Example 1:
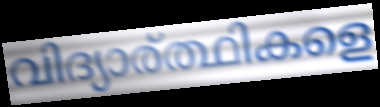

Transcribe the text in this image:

വിദ്യാര്ത്ഥികളെ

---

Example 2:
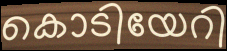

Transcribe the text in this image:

കൊടിയേറി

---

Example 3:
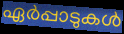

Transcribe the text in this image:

ഏർപ്പാടുകൾ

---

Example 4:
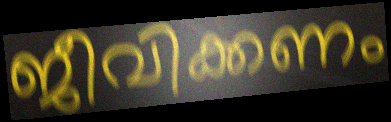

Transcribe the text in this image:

ജീവിക്കണം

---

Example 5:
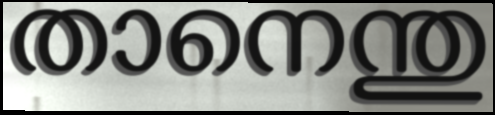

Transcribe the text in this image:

താനെന്തു